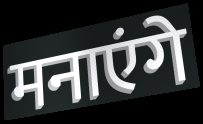
मनाएंगे